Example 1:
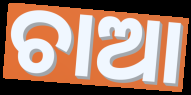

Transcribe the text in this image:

ଚାଆ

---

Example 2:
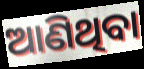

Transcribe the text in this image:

ଆଣିଥିବା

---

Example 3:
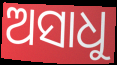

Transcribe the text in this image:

ଅସାଧୁ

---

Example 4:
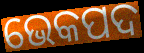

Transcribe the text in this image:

ଭେକପଦ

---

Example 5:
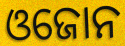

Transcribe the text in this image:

ଓଜୋନ